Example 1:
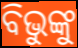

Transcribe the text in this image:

ବିଭୁଙ୍କୁ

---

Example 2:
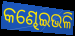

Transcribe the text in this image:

କଣ୍ଢେଇଭଳି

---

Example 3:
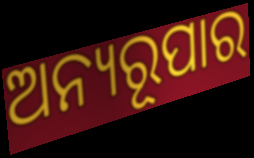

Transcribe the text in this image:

ଅନ୍ୟରୂପାର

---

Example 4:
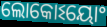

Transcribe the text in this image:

ଲୋକୋଽୟୋଂ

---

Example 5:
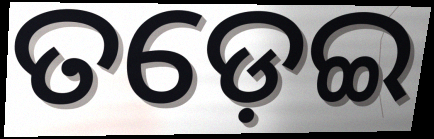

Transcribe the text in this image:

ତଡ଼େଇ